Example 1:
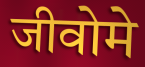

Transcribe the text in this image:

जीवोमे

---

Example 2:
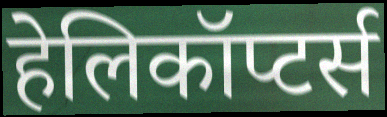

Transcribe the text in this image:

हेलिकॉप्टर्स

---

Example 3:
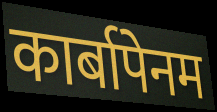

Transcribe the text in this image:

कार्बापेनम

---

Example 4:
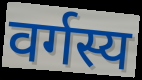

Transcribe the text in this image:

वर्गस्य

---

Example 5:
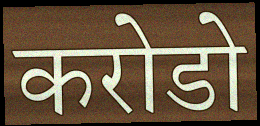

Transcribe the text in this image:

करोडो